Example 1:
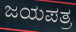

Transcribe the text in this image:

ಜಯಪತ್ರ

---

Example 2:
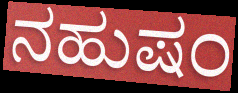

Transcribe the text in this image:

ನಹುಷಂ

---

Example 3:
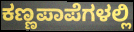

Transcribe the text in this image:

ಕಣ್ಣಪಾಪೆಗಳಲ್ಲಿ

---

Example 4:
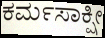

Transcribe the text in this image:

ಕರ್ಮಸಾಕ್ಷೀ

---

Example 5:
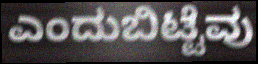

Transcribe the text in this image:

ಎಂದುಬಿಟ್ಟೆವು